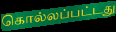
கொல்லப்பட்டது